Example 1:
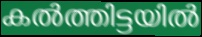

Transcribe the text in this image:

കൽത്തിട്ടയിൽ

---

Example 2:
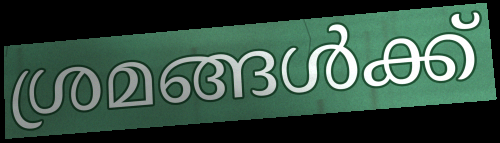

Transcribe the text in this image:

ശ്രമങ്ങൾക്ക്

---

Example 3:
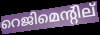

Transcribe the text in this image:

റെജിമെന്റില്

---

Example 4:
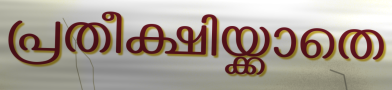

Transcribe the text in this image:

പ്രതീക്ഷിയ്ക്കാതെ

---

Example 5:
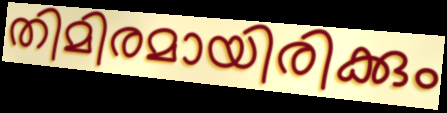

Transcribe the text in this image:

തിമിരമായിരിക്കും